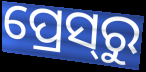
ପ୍ରେସ୍‌ରୁ